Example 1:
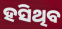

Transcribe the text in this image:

ହସିଥିବ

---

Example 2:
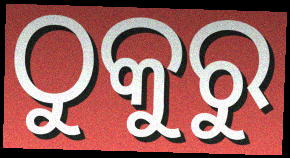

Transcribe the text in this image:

ଠୁକୁରୁ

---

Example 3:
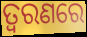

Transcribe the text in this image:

ତ୍ଵରଣରେ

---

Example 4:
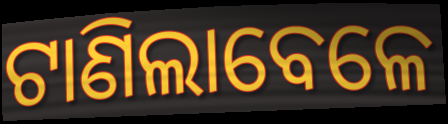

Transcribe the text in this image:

ଟାଣିଲାବେଳେ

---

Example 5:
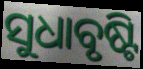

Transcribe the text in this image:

ସୁଧାବୃଷ୍ଟି